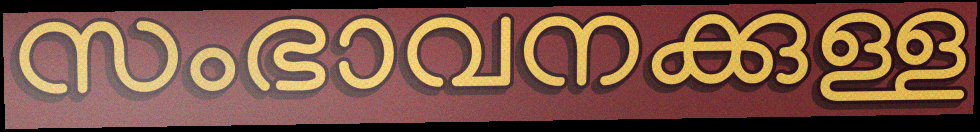
സംഭാവനക്കുള്ള